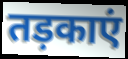
तड़काएं